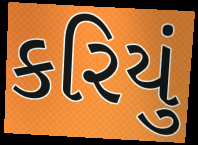
કરિયું